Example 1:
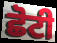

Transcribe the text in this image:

ਛੋਟੀ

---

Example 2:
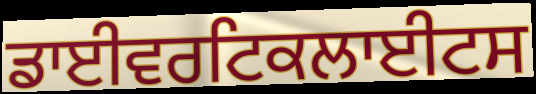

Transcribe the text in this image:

ਡਾਈਵਰਟਿਕਲਾਈਟਸ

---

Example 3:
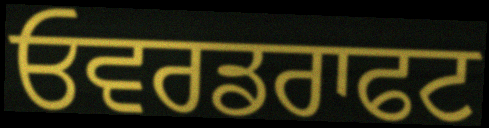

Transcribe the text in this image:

ਓਵਰਡਰਾਫਟ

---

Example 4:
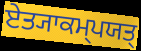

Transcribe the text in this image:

ਏਤ੍ਯਾਕਮ੍ਪਯਤ੍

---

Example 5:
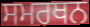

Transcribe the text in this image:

ਸਮਰਥਨ